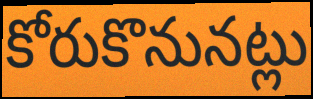
కోరుకొనునట్లు